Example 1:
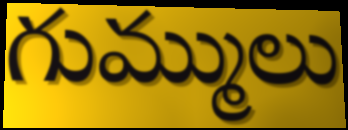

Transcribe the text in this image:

గుమ్ములు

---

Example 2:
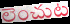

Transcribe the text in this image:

లెంచుట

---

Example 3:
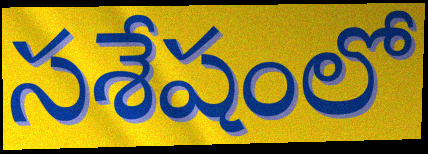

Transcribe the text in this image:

సశేషంలో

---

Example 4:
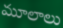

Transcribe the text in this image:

మూలాలు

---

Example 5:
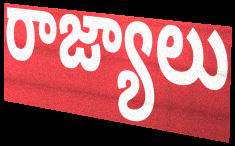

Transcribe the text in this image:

రాజ్యాలు